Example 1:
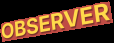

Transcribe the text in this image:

OBSERVER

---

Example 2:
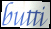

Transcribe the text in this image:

butti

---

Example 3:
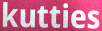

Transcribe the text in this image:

kutties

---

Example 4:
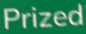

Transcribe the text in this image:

Prized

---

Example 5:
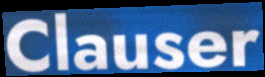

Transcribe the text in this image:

Clauser